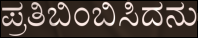
ಪ್ರತಿಬಿಂಬಿಸಿದನು